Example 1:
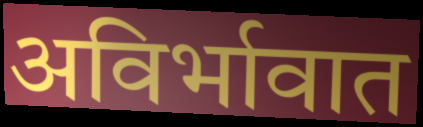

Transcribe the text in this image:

अविर्भावात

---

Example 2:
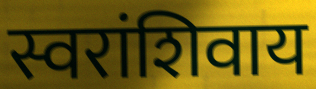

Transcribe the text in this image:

स्वरांशिवाय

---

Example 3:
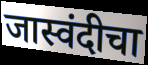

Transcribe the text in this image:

जास्वंदीचा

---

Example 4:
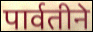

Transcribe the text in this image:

पार्वतीने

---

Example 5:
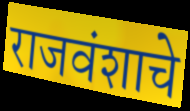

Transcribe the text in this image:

राजवंशाचे